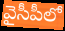
వైసీపీలో